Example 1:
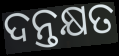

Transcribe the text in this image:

ଦନ୍ତକ୍ଷତ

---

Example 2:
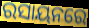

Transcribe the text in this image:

ରସାୟନରେ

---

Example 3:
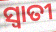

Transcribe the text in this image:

ସ୍ୱାତୀ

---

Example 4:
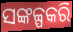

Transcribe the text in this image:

ସଙ୍କଳ୍ପକରି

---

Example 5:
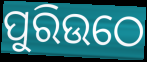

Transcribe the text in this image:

ପୁରିଉଠେ